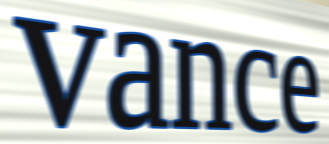
vance